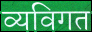
व्यविगत